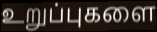
உறுப்புகளை